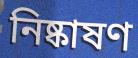
নিষ্কাষণ